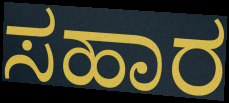
ಸಹಾರ